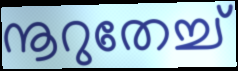
നൂറുതേച്ച്